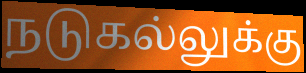
நடுகல்லுக்கு